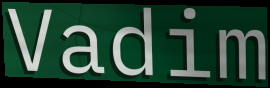
Vadim